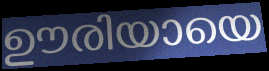
ഊരിയായെ